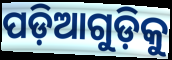
ପଡ଼ିଆଗୁଡ଼ିକୁ